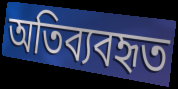
অতিব্যবহৃত